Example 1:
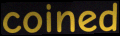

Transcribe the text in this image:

coined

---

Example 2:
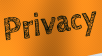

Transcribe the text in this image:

Privacy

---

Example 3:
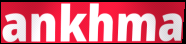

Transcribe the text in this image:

ankhma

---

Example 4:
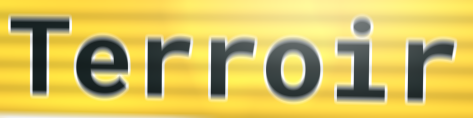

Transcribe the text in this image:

Terroir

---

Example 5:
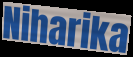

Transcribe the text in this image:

Niharika